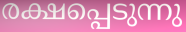
രക്ഷപ്പെടുന്നു